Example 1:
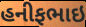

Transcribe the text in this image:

હનીફભાઇ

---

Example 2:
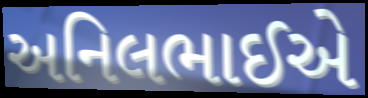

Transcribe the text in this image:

અનિલભાઈએ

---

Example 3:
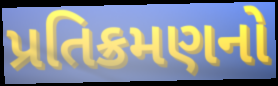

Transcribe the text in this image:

પ્રતિક્રમણનો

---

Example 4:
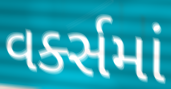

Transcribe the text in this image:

વર્ક્સમાં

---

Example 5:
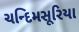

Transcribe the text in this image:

ચન્દિમસૂરિયા